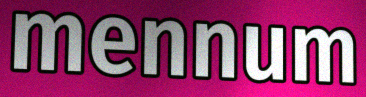
mennum